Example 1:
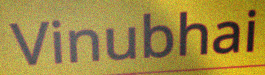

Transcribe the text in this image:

Vinubhai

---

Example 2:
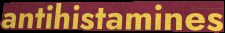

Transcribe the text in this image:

antihistamines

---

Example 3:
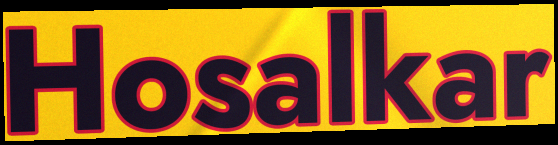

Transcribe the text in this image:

Hosalkar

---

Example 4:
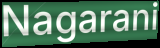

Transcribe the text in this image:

Nagarani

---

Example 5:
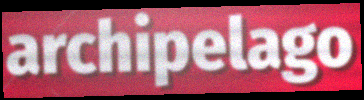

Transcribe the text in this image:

archipelago